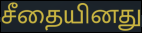
சீதையினது